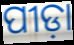
ପୀଡ଼ା